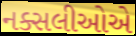
નક્સલીઓએ